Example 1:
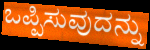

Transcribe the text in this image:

ಒಪ್ಪಿಸುವುದನ್ನು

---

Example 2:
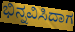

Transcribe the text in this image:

ಭಿನ್ನವಿಸಿದಾಗ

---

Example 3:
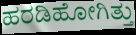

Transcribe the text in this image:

ಹರಡಿಹೋಗಿತ್ತು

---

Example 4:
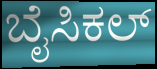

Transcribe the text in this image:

ಬೈಸಿಕಲ್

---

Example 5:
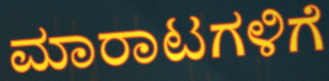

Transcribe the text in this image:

ಮಾರಾಟಗಳಿಗೆ